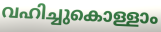
വഹിച്ചുകൊള്ളാം